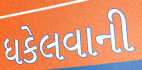
ધકેલવાની